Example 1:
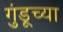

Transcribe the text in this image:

गुंडूच्या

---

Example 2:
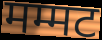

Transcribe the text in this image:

मम्मट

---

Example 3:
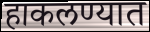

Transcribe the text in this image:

हाकलण्यात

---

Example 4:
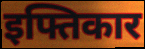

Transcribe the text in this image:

इफ्तिकार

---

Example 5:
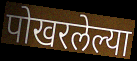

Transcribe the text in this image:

पोखरलेल्या